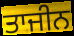
ਤਾਜੀਨ